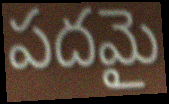
పదమై